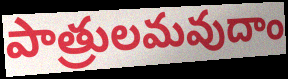
పాత్రులమవుదాం